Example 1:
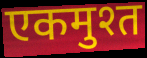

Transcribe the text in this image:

एकमुश्त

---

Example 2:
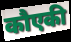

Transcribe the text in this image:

कौएकी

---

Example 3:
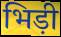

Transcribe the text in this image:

भिड़ी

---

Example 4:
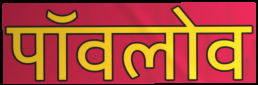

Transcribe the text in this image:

पॉवलोव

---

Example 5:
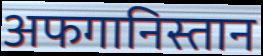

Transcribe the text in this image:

अफगानिस्तान